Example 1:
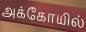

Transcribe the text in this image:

அக்கோயில்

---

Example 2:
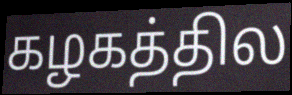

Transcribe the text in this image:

கழகத்தில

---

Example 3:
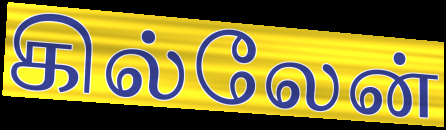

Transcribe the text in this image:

கில்லேன்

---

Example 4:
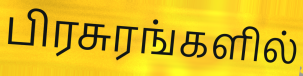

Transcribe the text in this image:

பிரசுரங்களில்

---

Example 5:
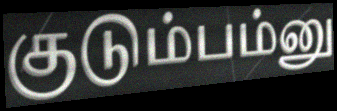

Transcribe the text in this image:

குடும்பம்னு